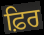
ਫ਼ਿਰ